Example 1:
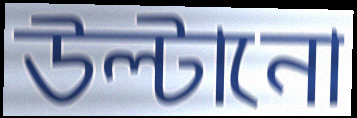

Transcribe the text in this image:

উল্টানো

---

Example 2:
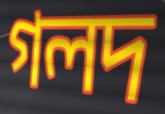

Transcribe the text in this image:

গলদ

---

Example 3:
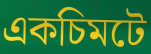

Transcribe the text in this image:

একচিমটে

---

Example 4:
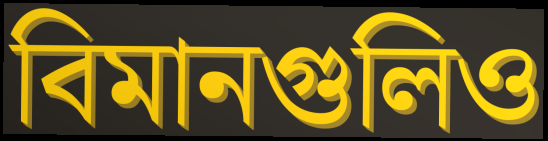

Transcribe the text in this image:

বিমানগুলিও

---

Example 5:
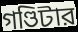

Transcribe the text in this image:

গণ্ডিটার